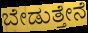
ಬೇಡುತ್ತೇನೆ